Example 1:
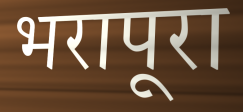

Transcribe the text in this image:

भरापूरा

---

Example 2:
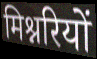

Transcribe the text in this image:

मिश्नरियों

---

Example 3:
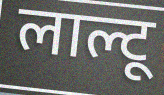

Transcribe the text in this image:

लाल्टू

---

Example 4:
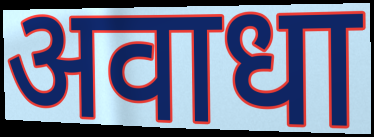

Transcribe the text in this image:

अवाधा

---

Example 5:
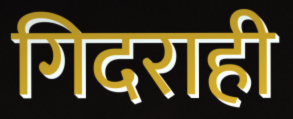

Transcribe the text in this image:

गिदराही